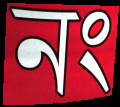
নং